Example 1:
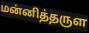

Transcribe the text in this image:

மன்னித்தருள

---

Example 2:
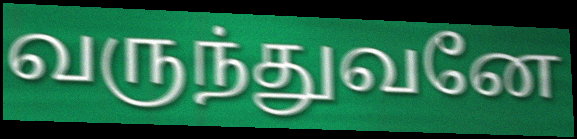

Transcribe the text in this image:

வருந்துவனே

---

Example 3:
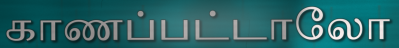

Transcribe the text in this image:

காணப்பட்டாலோ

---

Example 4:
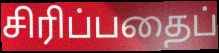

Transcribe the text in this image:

சிரிப்பதைப்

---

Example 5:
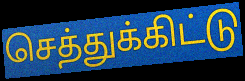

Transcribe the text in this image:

செத்துக்கிட்டு